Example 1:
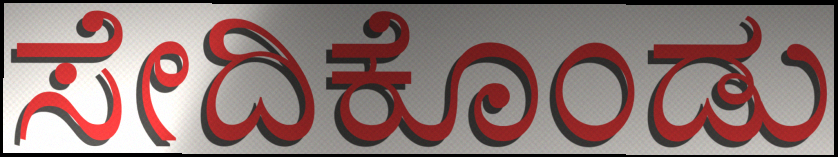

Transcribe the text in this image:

ಸೇದಿಕೊಂಡು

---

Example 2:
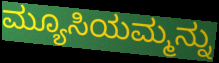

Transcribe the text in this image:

ಮ್ಯೂಸಿಯಮ್ಮನ್ನು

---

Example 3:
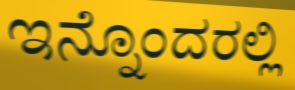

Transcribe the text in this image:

ಇನ್ನೊಂದರಲ್ಲಿ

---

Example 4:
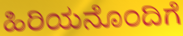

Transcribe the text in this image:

ಹಿರಿಯನೊಂದಿಗೆ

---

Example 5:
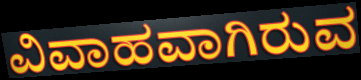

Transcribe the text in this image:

ವಿವಾಹವಾಗಿರುವ